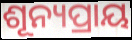
ଶୂନ୍ୟପ୍ରାୟ